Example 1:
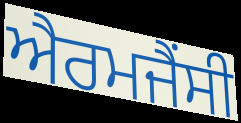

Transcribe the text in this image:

ਐਰਮਜੈਂਸੀ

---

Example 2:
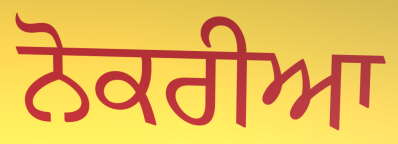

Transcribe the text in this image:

ਨੋਕਰੀਆ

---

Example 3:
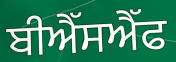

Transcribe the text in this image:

ਬੀਐੱਸਐੱਫ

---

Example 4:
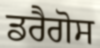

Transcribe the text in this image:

ਡਰੈਗੋਸ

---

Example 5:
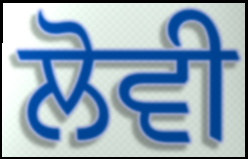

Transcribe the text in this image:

ਲੋਵੀ